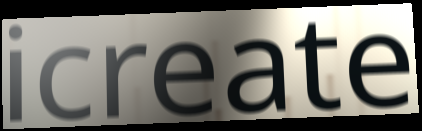
icreate